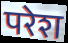
परेश